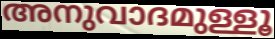
അനുവാദമുള്ളൂ